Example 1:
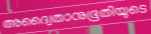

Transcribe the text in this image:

അദ്വൈതാനുഭൂതിയുടെ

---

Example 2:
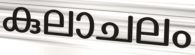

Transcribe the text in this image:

കുലാചലം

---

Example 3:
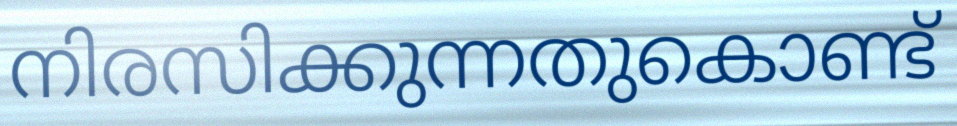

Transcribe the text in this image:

നിരസിക്കുന്നതുകൊണ്ട്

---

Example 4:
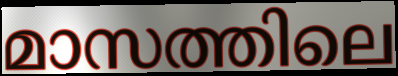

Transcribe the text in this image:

മാസത്തിലെ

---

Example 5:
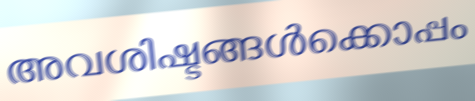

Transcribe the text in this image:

അവശിഷ്ടങ്ങൾക്കൊപ്പം